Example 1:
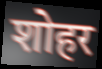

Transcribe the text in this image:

शोहर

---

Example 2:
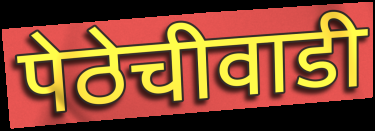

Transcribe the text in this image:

पेठेचीवाडी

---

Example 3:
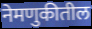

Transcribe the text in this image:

नेमणुकीतील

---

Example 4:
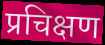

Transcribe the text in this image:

प्रचिक्षण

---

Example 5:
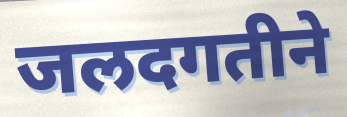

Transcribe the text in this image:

जलदगतीने